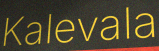
Kalevala